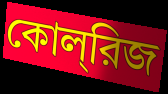
কোল্‌রিজ